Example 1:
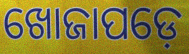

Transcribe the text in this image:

ଖୋଜାପଡ଼େ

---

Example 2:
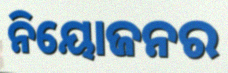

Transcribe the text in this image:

ନିୟୋଜନର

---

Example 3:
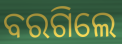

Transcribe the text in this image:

ବରଗିଲେ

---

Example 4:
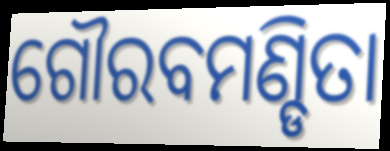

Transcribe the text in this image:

ଗୌରବମଣ୍ଡିତା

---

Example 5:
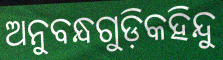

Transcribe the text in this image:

ଅନୁବନ୍ଧଗୁଡ଼ିକହିନ୍ଦୁ